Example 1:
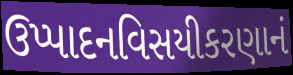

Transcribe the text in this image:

ઉપ્પાદનવિસયીકરણાનં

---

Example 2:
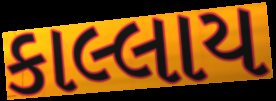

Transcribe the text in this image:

કાલ્લાય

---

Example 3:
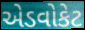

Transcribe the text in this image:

એડવોકેટ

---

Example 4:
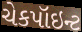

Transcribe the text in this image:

ચેકપૉઇન્ટ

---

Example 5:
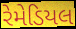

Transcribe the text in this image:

રેમેડિયલ